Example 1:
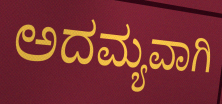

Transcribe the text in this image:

ಅದಮ್ಯವಾಗಿ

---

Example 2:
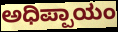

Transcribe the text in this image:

ಅಧಿಪ್ಪಾಯಂ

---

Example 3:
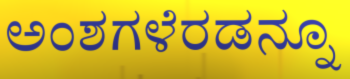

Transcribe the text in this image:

ಅಂಶಗಳೆರಡನ್ನೂ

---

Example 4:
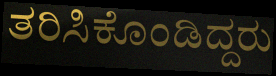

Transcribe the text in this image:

ತರಿಸಿಕೊಂಡಿದ್ದರು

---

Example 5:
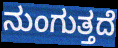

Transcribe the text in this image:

ನುಂಗುತ್ತದೆ